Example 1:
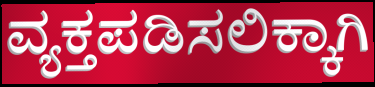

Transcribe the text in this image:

ವ್ಯಕ್ತಪಡಿಸಲಿಕ್ಕಾಗಿ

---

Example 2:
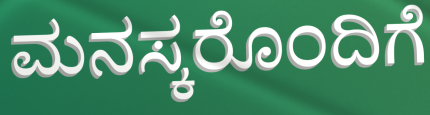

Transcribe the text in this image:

ಮನಸ್ಕರೊಂದಿಗೆ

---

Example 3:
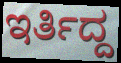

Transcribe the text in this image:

ಇರ್ತಿದ್ದ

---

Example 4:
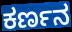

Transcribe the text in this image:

ಕರ್ಣನ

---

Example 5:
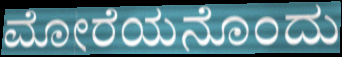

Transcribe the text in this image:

ಮೋರೆಯನೊಂದು